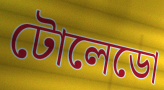
টোলেডো